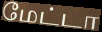
மேட்டா